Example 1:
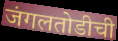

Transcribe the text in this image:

जंगलतोडीची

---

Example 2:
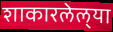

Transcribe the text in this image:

शाकारलेल्या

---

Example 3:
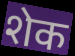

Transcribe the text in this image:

शेक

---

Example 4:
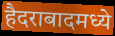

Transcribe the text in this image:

हैदराबादमध्ये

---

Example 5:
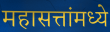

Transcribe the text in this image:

महासत्तांमध्ये